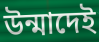
উন্মাদেই